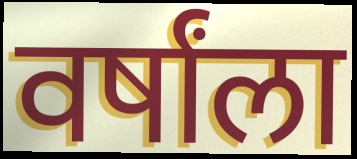
वर्षांला